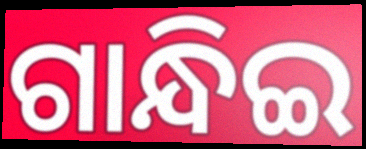
ଗାନ୍ଧିଇ